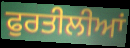
ਫੁਰਤੀਲੀਆਂ